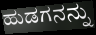
ಹುಡಗನನ್ನು